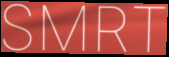
SMRT